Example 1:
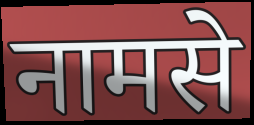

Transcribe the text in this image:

नामसे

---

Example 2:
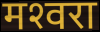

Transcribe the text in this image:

मश्वरा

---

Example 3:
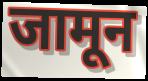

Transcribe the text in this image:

जामून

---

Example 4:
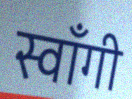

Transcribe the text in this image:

स्वाँगी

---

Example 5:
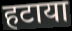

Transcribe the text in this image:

हटाया